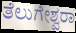
ತೆಲುಗೇಶ್ವರಾ